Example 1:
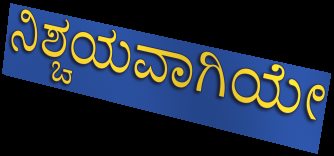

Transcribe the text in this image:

ನಿಶ್ಚಯವಾಗಿಯೇ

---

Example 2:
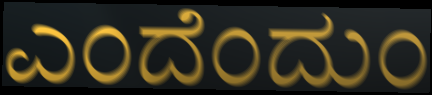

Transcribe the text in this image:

ಎಂದೆಂದುಂ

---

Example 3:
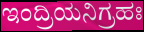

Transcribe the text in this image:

ಇಂದ್ರಿಯನಿಗ್ರಹಃ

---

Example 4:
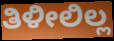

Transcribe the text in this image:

ತಿಳೀಲಿಲ್ಲ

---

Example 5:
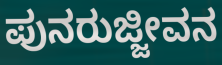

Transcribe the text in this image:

ಪುನರುಜ್ಜೀವನ